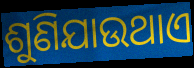
ଶୁଣିଯାଉଥାଏ